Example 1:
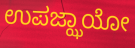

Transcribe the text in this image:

ಉಪಜ್ಝಾಯೋ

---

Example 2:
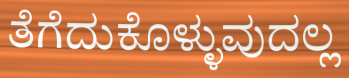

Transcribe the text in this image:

ತೆಗೆದುಕೊಳ್ಳುವುದಲ್ಲ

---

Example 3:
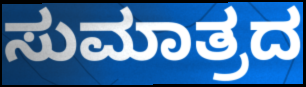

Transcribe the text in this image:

ಸುಮಾತ್ರದ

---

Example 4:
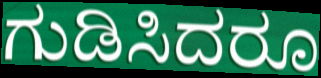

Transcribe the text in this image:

ಗುಡಿಸಿದರೂ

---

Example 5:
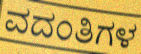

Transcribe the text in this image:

ವದಂತಿಗಳ